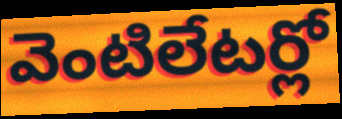
వెంటిలేటర్లో